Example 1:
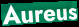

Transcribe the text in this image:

Aureus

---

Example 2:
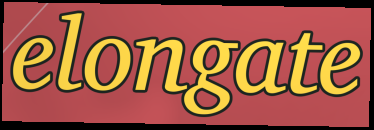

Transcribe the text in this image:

elongate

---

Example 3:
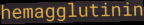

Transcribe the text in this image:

hemagglutinin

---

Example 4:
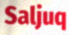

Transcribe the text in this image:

Saljuq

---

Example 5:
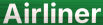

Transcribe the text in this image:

Airliner